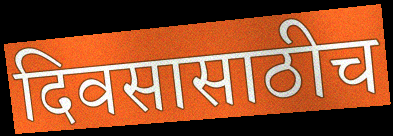
दिवसासाठीच